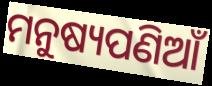
ମନୁଷ୍ୟପଣିଆଁ